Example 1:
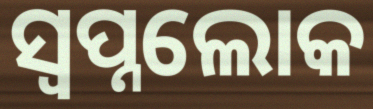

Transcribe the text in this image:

ସ୍ୱପ୍ନଲୋକ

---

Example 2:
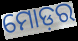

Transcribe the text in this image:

ମୋଡ଼ର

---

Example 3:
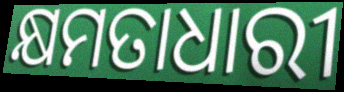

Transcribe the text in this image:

କ୍ଷମତାଧାରୀ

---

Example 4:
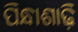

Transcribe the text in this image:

ପିନ୍ଧାଶାଢ଼ି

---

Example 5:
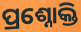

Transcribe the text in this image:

ପ୍ରଶ୍ନୋକ୍ତି